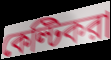
কেল্টিকরা